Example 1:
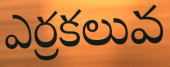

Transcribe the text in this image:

ఎర్రకలువ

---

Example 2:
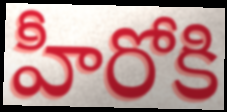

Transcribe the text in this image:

హీరోకి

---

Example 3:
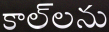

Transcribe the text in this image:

కాల్‌లను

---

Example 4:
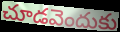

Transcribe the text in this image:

చూడవెందుకు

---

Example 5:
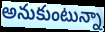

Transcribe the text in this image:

అనుకుంటున్నా